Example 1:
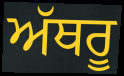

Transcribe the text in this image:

ਅੱਥਰੂ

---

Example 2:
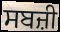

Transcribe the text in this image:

ਸਬਜ਼ੀ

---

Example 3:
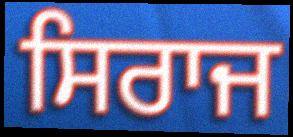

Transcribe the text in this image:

ਸਿਰਾਜ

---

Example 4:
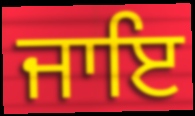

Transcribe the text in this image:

ਜਾਇ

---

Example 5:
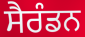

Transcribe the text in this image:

ਸੈਰੰਡਨ